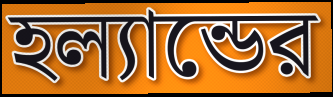
হল্যান্ডের